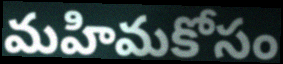
మహిమకోసం